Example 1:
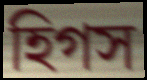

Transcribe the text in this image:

হিগস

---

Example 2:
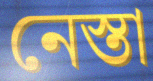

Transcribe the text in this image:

নেস্তা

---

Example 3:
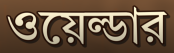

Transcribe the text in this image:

ওয়েল্ডার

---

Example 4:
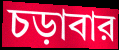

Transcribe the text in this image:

চড়াবার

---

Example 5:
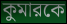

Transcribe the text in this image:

কুমারকে